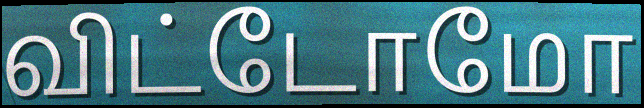
விட்டோமோ